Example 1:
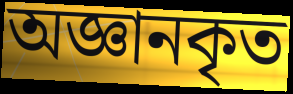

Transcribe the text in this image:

অজ্ঞানকৃত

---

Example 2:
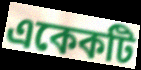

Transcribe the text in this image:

একেকটি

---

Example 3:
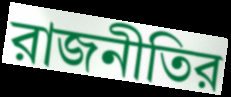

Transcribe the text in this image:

রাজনীতির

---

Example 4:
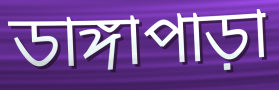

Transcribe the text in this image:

ডাঙ্গাপাড়া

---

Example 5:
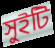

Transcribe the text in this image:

সুইটি